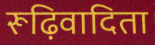
रूढ़िवादिता